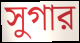
সুগার